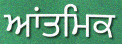
ਆਂਤਮਿਕ